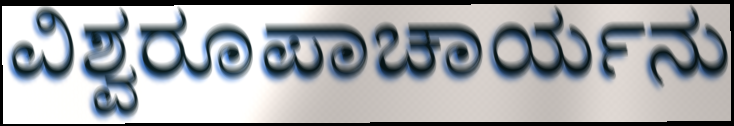
ವಿಶ್ವರೂಪಾಚಾರ್ಯನು